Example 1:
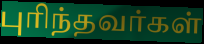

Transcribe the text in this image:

புரிந்தவர்கள்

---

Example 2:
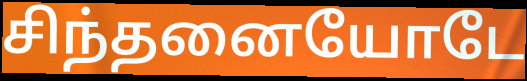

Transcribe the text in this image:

சிந்தனையோடே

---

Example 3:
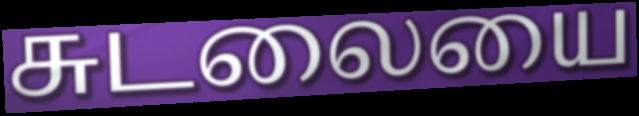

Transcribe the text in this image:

சுடலையை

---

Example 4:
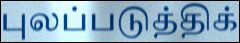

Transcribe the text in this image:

புலப்படுத்திக்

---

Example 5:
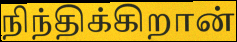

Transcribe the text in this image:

நிந்திக்கிறான்